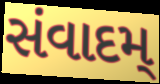
સંવાદમ્